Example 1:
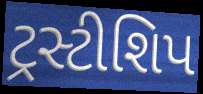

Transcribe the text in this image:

ટ્રસ્ટીશિપ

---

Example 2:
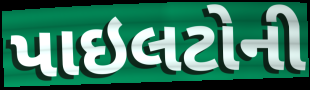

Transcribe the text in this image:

પાઇલટોની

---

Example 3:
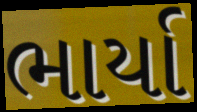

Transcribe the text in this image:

ભાર્યા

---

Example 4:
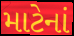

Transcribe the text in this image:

માટેનાં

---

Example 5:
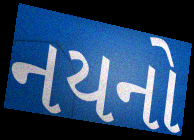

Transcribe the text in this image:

નયનો